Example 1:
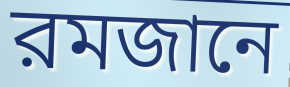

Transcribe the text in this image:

রমজানে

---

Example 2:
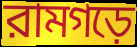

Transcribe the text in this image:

রামগড়ে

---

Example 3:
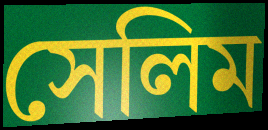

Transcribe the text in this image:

সেলিম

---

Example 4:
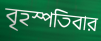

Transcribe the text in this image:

বৃহস্পতিবার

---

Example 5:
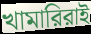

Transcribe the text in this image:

খামারিরাই